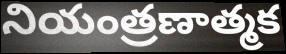
నియంత్రణాత్మక